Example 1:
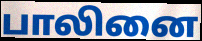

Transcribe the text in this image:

பாலினை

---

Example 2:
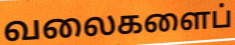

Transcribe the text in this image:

வலைகளைப்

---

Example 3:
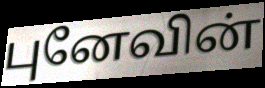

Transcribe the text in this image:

புனேவின்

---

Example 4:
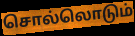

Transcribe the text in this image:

சொல்லொடும்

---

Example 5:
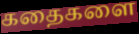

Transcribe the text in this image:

கதைகளை